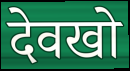
देवखो